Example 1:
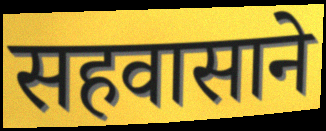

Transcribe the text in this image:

सहवासाने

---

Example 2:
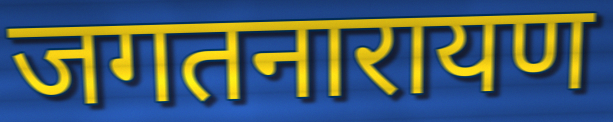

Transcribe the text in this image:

जगतनारायण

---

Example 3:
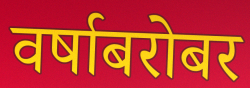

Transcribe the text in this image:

वर्षाबरोबर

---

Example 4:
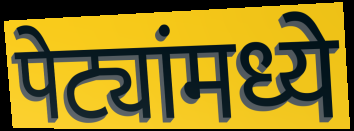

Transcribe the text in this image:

पेट्यांमध्ये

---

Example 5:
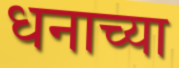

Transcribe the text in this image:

धनाच्या